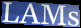
LAMs